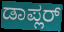
ಡಾಪ್ಲರ್